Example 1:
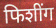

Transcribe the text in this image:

फिशींग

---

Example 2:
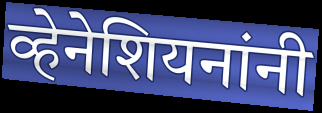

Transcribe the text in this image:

व्हेनेशियनांनी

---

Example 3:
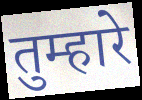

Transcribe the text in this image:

तुम्हारे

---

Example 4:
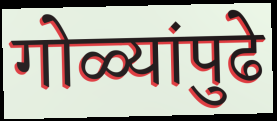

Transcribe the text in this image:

गोळ्यांपुढे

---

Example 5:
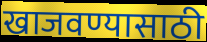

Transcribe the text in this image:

खाजवण्यासाठी